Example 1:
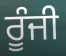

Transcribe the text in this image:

ਰੂੰਜੀ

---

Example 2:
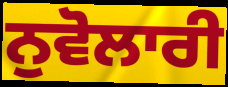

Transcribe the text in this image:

ਨੁਵੋਲਾਰੀ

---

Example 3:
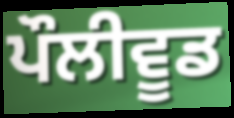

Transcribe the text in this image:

ਪੌਲੀਵੂਡ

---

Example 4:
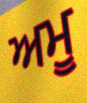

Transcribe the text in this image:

ਅਮੂ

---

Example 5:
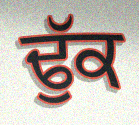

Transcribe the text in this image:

ਢੁੱਕ